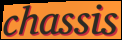
chassis